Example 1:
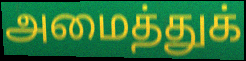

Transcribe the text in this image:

அமைத்துக்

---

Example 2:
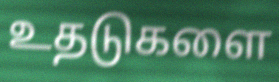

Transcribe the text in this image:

உதடுகளை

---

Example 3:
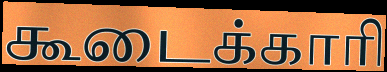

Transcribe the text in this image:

கூடைக்காரி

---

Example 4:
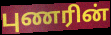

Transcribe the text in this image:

புணரின்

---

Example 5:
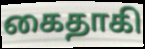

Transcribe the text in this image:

கைதாகி